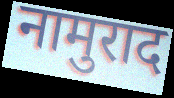
नामुराद